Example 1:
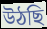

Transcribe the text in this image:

উঠছি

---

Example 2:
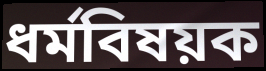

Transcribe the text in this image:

ধর্মবিষয়ক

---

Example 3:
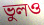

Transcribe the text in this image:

ভুলও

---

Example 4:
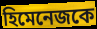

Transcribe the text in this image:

হিমেনেজকে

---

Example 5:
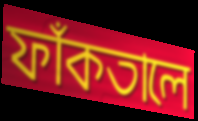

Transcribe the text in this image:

ফাঁকতালে